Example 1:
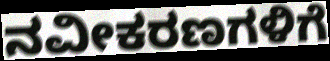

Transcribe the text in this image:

ನವೀಕರಣಗಳಿಗೆ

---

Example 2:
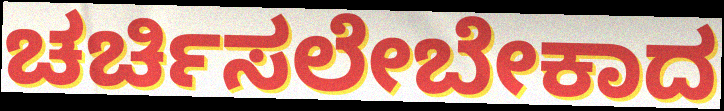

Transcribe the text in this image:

ಚರ್ಚಿಸಲೇಬೇಕಾದ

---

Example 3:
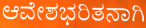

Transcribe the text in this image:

ಆವೇಶಭರಿತನಾಗಿ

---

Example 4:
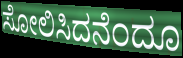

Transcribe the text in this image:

ಸೋಲಿಸಿದನೆಂದೂ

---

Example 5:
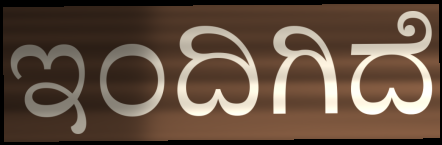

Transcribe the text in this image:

ಇಂದಿಗಿದೆ